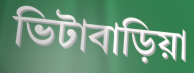
ভিটাবাড়িয়া